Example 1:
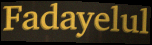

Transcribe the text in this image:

Fadayelul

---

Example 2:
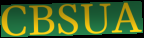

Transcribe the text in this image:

CBSUA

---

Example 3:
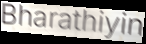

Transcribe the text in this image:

Bharathiyin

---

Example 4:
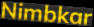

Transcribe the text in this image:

Nimbkar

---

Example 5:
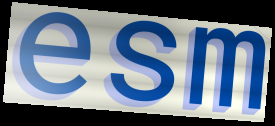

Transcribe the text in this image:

esm